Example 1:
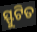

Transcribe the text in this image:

ସ୍ଫୁଟିତ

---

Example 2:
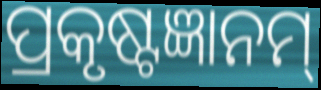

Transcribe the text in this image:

ପ୍ରକୃଷ୍ଟଜ୍ଞାନମ୍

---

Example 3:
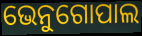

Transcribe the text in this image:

ଭେନୁଗୋପାଲ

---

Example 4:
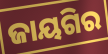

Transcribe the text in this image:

ଜାୟଗିର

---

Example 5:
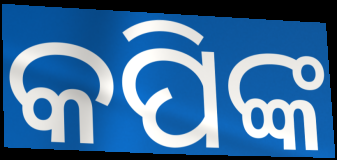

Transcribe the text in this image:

କପିଙ୍କ